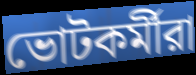
ভোটকর্মীরা